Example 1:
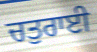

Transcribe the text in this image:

ਚਤੁਰਾਈ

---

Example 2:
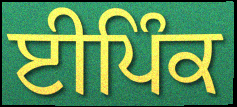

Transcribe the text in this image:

ਈਪਿੰਕ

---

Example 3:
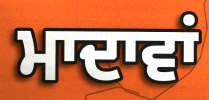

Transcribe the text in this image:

ਮਾਦਾਵਾਂ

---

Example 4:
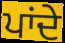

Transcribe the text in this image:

ਪਾਂਦੇ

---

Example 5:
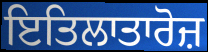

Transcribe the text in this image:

ਇਤਿਲਾਤਾਰੋਜ਼